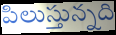
పిలుస్తున్నది